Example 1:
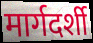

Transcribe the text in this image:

मार्गदर्शी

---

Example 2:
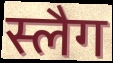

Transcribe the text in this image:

स्लैग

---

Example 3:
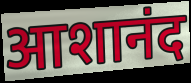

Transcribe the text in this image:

आशानंद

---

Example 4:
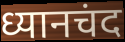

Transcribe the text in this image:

ध्यानचंद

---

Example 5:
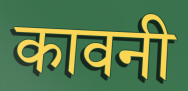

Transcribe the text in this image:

कावनी